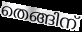
തെങ്ങിന്